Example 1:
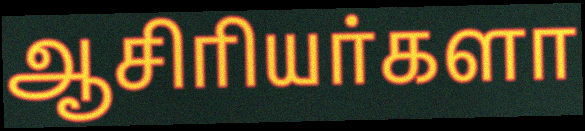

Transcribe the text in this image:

ஆசிரியர்களா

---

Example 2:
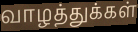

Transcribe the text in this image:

வாழத்துக்கள்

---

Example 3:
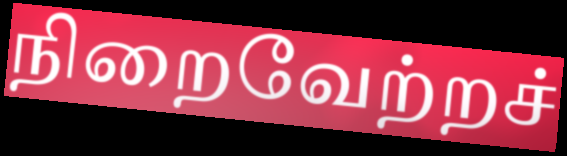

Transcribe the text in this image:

நிறைவேற்றச்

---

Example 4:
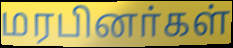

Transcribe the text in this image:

மரபினர்கள்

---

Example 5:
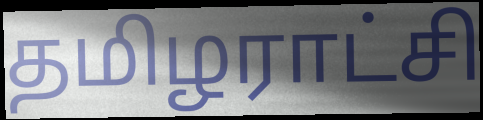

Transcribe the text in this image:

தமிழராட்சி